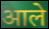
आले